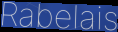
Rabelais